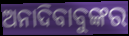
ଅନାଦିବାବୁଙ୍କର